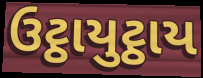
ઉટ્ઠાયુટ્ઠાય